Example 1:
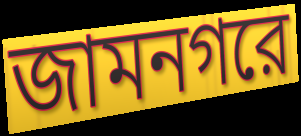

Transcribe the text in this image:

জামনগরে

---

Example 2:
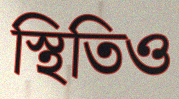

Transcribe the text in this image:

স্থিতিও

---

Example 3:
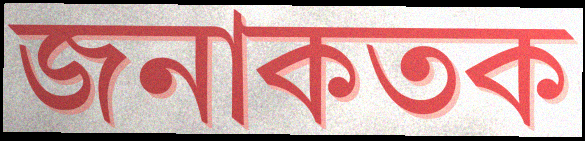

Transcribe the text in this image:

জনাকতক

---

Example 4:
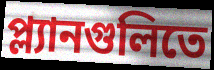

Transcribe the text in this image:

প্ল্যানগুলিতে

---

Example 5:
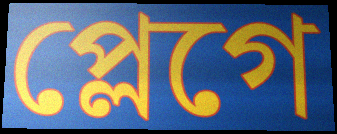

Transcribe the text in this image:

প্লেগে